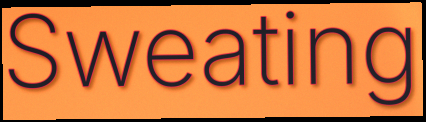
Sweating